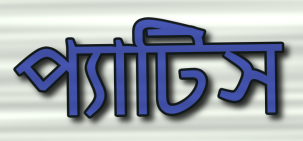
প্যাটিস